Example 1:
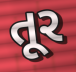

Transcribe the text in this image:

તૂર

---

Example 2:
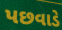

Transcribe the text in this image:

પછવાડે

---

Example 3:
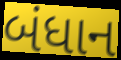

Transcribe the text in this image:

બંધાન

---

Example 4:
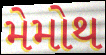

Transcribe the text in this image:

મેમોથ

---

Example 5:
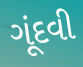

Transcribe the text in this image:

ગૂંદવી